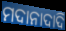
ମଦାନାଦାଦି